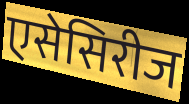
एसेसिरीज